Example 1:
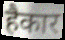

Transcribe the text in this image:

हैकार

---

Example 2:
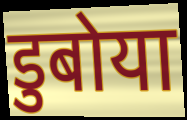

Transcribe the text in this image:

डुबोया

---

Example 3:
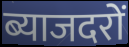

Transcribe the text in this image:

ब्याजदरों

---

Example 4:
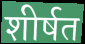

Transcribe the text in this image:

शीर्षत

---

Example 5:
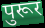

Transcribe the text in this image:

पुरूर